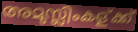
അമുസ്ലിംകള്ക്ക്